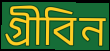
গ্রীবিন